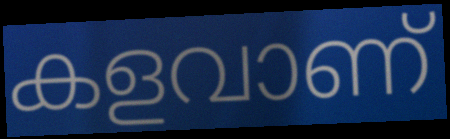
കളവാണ്